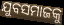
ଯୁବସମାଜକୁ